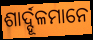
ଶାର୍ଦ୍ଦୂଳମାନେ